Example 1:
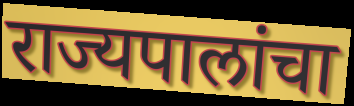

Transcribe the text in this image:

राज्यपालांचा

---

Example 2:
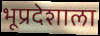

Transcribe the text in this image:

भूप्रदेशाला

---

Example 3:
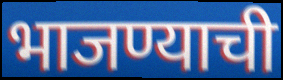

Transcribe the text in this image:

भाजण्याची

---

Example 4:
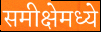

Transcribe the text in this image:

समीक्षेमध्ये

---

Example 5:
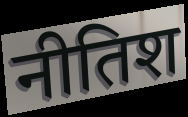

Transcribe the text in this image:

नीतिश